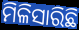
ମିଳିସାରିଛି